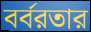
বর্বরতার